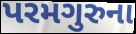
પરમગુરુના